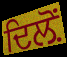
ਦਿਲ਼ੋਂ